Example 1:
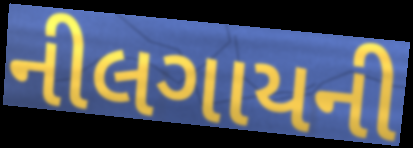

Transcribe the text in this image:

નીલગાયની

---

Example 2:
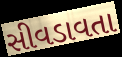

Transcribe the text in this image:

સીવડાવતા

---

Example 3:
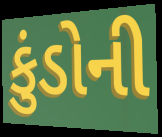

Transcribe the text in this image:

કુંડોની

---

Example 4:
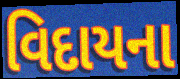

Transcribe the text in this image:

વિદાયના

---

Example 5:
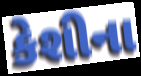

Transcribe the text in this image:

કેશીના